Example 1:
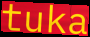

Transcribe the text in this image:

tuka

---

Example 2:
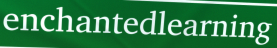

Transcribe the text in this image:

enchantedlearning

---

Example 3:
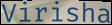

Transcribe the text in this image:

Virisha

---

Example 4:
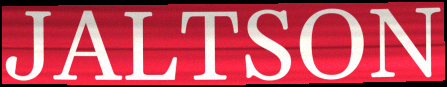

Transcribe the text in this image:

JALTSON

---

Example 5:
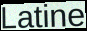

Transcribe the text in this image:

Latine